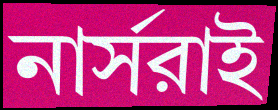
নার্সরাই